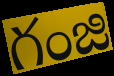
గంజి